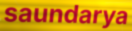
saundarya